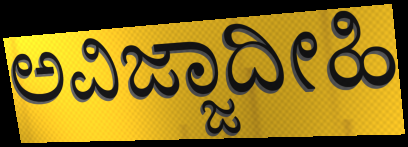
ಅವಿಜ್ಜಾದೀಹಿ